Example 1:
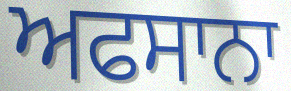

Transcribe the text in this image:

ਅਫਸਾਨਾ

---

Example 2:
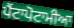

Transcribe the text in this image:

ਪੈਂਟਾਪੋਟਾਮੀਆ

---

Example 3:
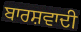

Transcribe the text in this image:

ਬਾਰਸ਼ਵਾਦੀ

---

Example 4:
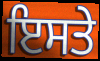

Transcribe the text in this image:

ਇਸਤੇ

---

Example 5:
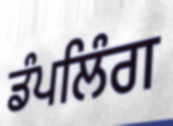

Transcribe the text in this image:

ਡੰਪਲਿੰਗ